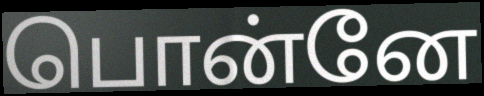
பொன்னே